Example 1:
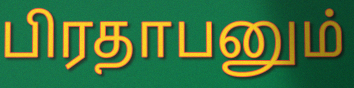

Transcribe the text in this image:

பிரதாபனும்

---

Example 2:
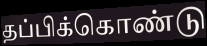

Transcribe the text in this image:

தப்பிக்கொண்டு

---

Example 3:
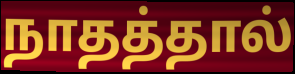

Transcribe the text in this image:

நாதத்தால்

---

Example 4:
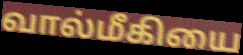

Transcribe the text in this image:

வால்மீகியை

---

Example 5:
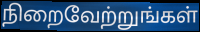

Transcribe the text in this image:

நிறைவேற்றுங்கள்